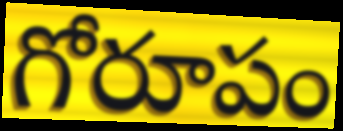
గోరూపం